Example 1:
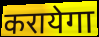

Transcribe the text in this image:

करायेगा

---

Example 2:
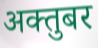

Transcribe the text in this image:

अक्तुबर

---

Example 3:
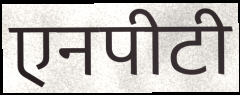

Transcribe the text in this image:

एनपीटी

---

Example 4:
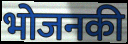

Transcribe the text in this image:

भोजनकी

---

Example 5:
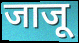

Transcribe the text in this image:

जाजू